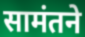
सामंतने